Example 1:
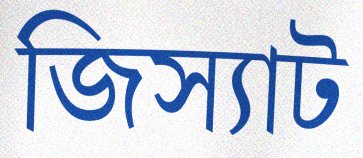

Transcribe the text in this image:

জিস্যাট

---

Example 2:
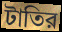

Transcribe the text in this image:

টাতির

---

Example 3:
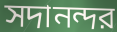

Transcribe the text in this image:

সদানন্দর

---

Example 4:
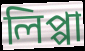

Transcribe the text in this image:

লিপ্পা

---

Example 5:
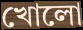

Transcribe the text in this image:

খোলো